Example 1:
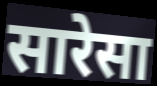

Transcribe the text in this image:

सारेसा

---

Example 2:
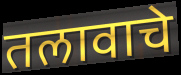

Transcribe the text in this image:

तलावाचे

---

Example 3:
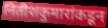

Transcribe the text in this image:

नितीशकुमारांकडून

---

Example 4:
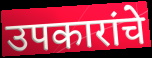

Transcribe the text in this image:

उपकारांचे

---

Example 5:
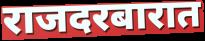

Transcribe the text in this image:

राजदरबारात